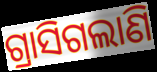
ଗ୍ରାସିଗଲାଣି